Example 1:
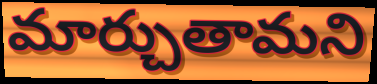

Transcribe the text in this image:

మార్చుతామని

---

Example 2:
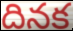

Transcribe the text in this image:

దినక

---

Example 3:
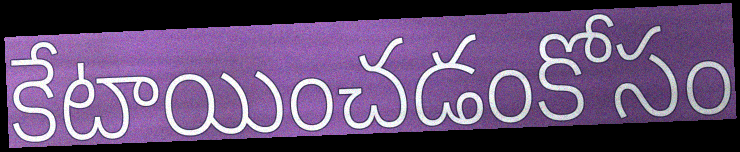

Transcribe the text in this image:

కేటాయించడంకోసం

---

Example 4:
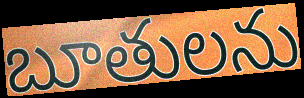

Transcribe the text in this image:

బూతులను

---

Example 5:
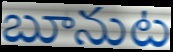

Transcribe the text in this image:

బూనుట